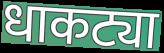
धाकट्या